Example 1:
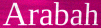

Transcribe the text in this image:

Arabah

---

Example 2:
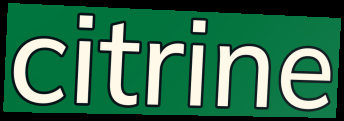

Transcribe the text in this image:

citrine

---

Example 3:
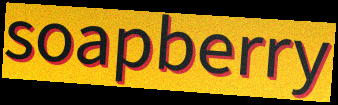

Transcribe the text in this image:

soapberry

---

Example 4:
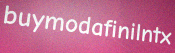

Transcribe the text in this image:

buymodafinilntx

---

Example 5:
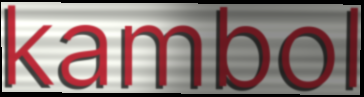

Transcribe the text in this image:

kambol